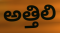
అత్తిలి